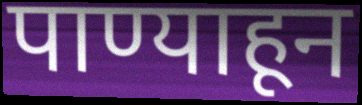
पाण्याहून